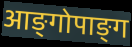
आङ्गोपाङ्ग